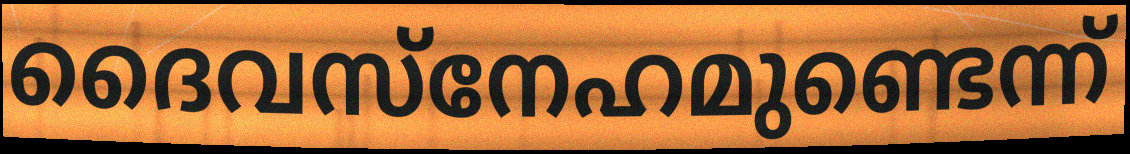
ദൈവസ്നേഹമുണ്ടെന്ന്